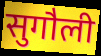
सुगौली